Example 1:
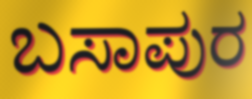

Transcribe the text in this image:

ಬಸಾಪುರ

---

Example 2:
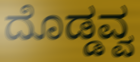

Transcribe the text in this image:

ದೊಡ್ಡವ್ವ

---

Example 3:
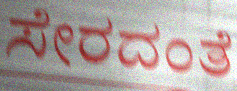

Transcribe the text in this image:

ಸೇರದಂತೆ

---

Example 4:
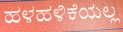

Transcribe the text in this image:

ಹಳಹಳಿಕೆಯಲ್ಲ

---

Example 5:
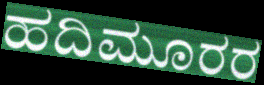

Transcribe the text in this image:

ಹದಿಮೂರರ